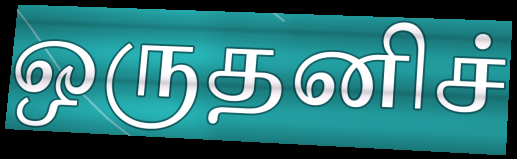
ஒருதனிச்